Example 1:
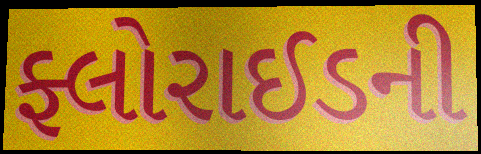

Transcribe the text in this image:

ફ્લોરાઈડની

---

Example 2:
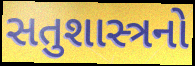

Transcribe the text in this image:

સતુશાસ્ત્રનો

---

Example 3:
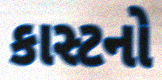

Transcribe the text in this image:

કાસ્ટનો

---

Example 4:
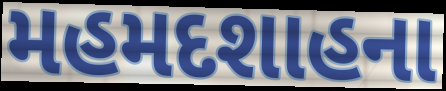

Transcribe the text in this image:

મહમદશાહના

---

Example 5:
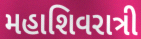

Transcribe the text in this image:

મહાશિવરાત્રી